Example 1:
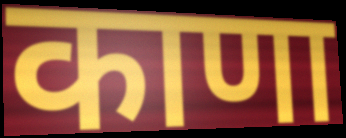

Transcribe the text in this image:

काणा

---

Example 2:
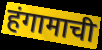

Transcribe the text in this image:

हंगामाची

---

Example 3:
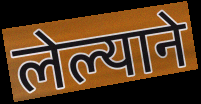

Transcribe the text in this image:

लेल्याने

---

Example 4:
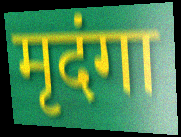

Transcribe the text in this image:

मृदंगा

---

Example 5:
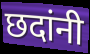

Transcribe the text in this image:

छदांनी